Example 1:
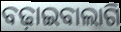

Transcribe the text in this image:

ବଢ଼ାଇବାଲାଗି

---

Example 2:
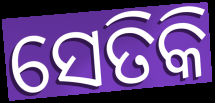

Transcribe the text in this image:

ସେତିକି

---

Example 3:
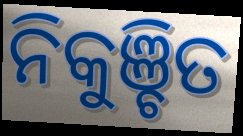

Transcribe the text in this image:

ନିକୁଞ୍ଚିତ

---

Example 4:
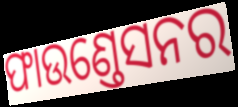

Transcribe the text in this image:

ଫାଉଣ୍ଡେସନର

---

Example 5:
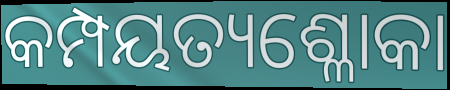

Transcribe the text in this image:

କମ୍ପୟତ୍ୟଶ୍ଳୋକା